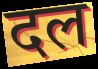
दल